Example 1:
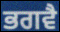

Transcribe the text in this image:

ਭਗਵੈ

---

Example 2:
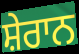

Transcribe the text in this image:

ਸ਼ੇਰਾਨ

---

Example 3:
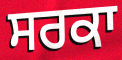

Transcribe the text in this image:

ਸਰਕਾ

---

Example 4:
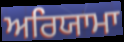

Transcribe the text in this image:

ਅਰਿਯਾਮਾ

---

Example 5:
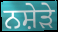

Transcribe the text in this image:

ਨਸ਼ੇੜੇ